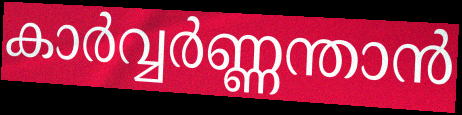
കാർവ്വർണ്ണന്താൻ